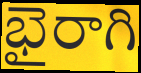
భైరాగి